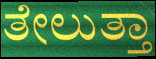
ತೇಲುತ್ತಾ